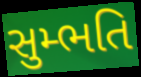
સુમ્ભતિ